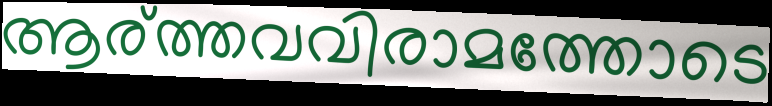
ആര്ത്തവവിരാമത്തോടെ